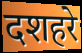
दशहरे